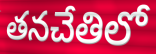
తనచేతిలో